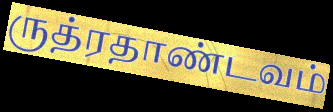
ருத்ரதாண்டவம்